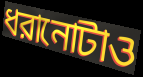
ধরানোটাও